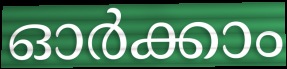
ഓർക്കാം